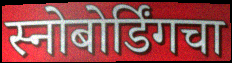
स्नोबोर्डिंगचा